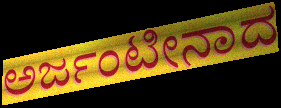
ಅರ್ಜಂಟೀನಾದ